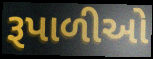
રૂપાળીઓ